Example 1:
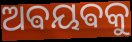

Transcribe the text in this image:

ଅଵୟଵକୁ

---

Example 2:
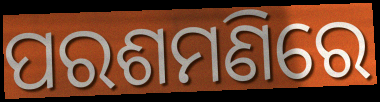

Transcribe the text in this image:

ପରଶମଣିରେ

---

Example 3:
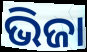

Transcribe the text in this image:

ଭିଜା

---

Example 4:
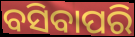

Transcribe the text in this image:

ବସିବାପରି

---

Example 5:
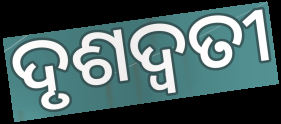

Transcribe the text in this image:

ଦୃଶଦ୍ୱତୀ